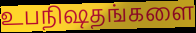
உபநிஷதங்களை